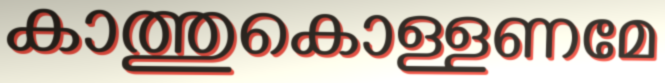
കാത്തുകൊള്ളണമേ